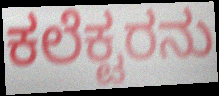
ಕಲೆಕ್ಟರನು